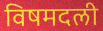
विषमदली